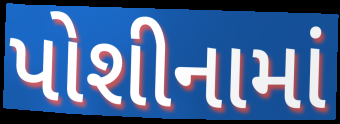
પોશીનામાં